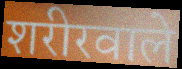
शरीरवाले